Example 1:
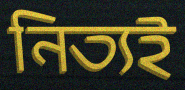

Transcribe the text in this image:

নিত্যই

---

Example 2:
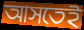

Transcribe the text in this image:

আসতেই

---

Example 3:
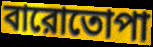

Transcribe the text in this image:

বারোতোপা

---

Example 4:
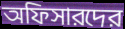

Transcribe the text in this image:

অফিসারদের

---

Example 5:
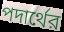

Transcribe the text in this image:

পদার্থের